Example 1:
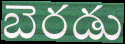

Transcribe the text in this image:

బెరడు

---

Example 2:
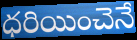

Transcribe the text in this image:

ధరియించెనే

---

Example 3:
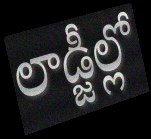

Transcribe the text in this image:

లాడ్జీల్లో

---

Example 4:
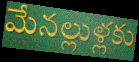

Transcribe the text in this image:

మేనల్లుళ్లకు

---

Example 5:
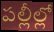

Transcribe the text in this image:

పల్లీల్లో